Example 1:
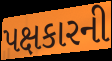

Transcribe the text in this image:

પક્ષકારની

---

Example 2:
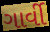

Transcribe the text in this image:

ગાર્વી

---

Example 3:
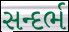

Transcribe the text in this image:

સન્દર્ભ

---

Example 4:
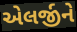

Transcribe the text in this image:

એલર્જીને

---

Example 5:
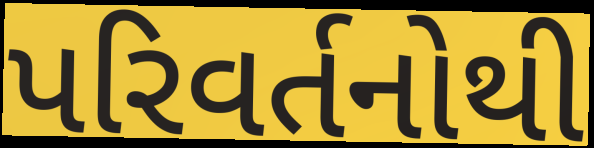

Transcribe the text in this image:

પરિવર્તનોથી